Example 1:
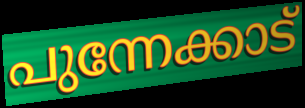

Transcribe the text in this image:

പുന്നേക്കാട്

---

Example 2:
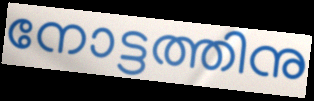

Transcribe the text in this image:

നോട്ടത്തിനു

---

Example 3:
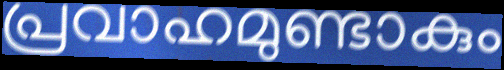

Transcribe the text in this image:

പ്രവാഹമുണ്ടാകും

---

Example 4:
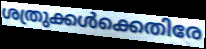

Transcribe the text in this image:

ശത്രുക്കൾക്കെതിരേ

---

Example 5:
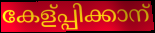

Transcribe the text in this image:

കേള്പ്പിക്കാന്